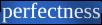
perfectness